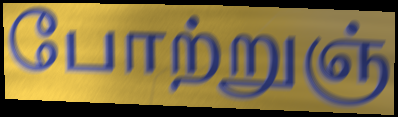
போற்றுஞ்